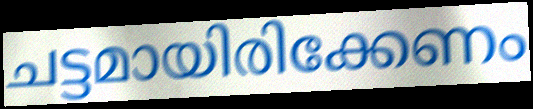
ചട്ടമായിരിക്കേണം